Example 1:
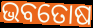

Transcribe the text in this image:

ଭବତୋଷ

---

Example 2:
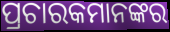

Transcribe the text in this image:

ପ୍ରଚାରକମାନଙ୍କର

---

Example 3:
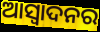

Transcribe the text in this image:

ଆସ୍ବାଦନର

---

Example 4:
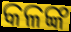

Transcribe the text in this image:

କଳଙ୍କ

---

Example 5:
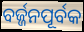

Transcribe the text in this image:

ବର୍ଜ୍ଜନପୂର୍ବକ